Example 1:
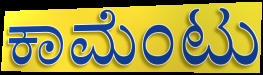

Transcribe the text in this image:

ಕಾಮೆಂಟು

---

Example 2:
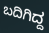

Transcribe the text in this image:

ಬದಿಗಿದ್ದ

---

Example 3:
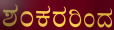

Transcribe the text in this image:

ಶಂಕರರಿಂದ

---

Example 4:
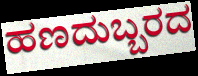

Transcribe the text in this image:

ಹಣದುಬ್ಬರದ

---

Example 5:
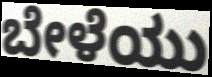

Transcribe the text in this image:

ಬೇಳೆಯು